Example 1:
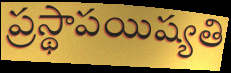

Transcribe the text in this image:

ప్రస్థాపయిష్యతి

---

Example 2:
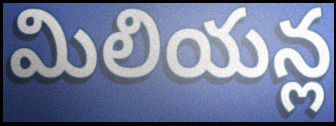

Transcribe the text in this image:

మిలియన్ల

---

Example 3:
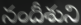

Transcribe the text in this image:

నందీశుని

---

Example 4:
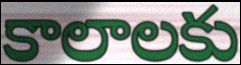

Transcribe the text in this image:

కాలాలకు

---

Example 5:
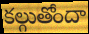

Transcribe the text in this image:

కల్గుతోందా